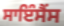
ਸਾਇੰਸੈਂਸ